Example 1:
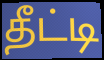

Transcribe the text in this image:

தீட்டி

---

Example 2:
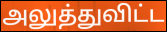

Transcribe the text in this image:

அலுத்துவிட்ட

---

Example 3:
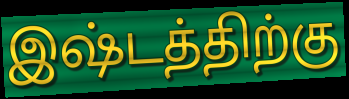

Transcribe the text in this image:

இஷ்டத்திற்கு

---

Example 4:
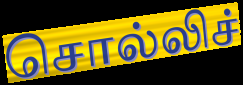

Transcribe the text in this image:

சொல்லிச்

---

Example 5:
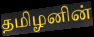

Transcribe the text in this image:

தமிழனின்